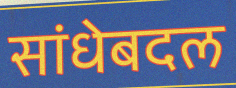
सांधेबदल